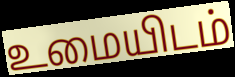
உமையிடம்